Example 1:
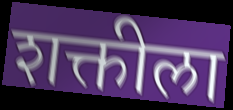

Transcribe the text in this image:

शक्तीला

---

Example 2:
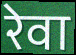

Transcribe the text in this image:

रेवा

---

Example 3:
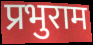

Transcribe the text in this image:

प्रभुराम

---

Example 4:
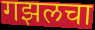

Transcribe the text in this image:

गझलचा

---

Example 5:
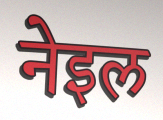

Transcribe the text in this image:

नेइल